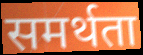
समर्थता